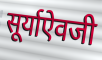
सूर्याऐवजी